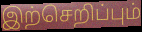
இற்செறிப்பும்